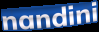
nandini